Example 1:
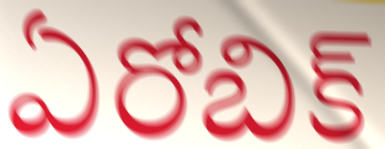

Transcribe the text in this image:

ఏరోబిక్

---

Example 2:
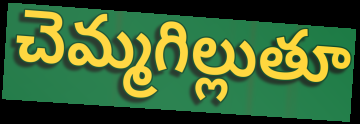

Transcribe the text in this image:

చెమ్మగిల్లుతూ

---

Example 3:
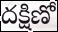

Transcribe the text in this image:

దక్షిణో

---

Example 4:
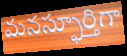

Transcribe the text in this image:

మనస్ఫూర్తిగా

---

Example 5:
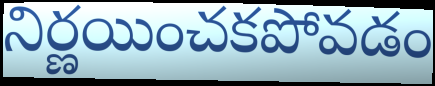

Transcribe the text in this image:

నిర్ణయించకపోవడం